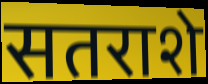
सतराशे